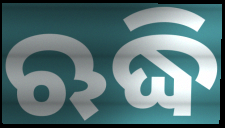
ଋଦ୍ଧି